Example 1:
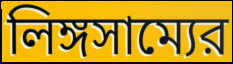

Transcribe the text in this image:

লিঙ্গসাম্যের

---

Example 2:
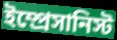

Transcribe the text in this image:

ইম্প্রেসানিস্ট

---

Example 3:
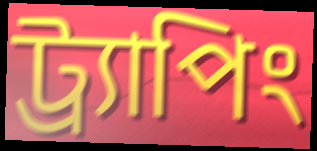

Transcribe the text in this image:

ট্র্যাপিং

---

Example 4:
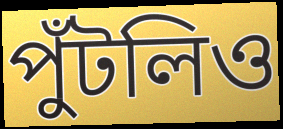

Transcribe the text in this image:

পুঁটলিও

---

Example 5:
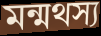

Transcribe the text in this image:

মন্মথস্য